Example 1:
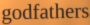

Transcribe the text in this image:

godfathers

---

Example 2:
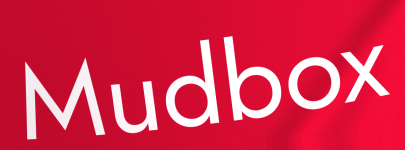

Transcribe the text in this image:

Mudbox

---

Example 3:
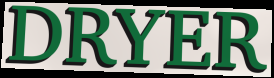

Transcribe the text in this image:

DRYER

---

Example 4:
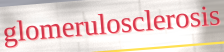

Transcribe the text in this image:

glomerulosclerosis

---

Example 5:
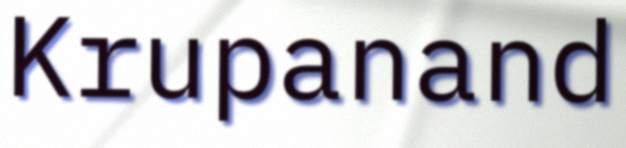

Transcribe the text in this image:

Krupanand